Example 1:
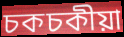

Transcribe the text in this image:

চকচকীয়া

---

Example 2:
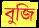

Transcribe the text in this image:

বুজি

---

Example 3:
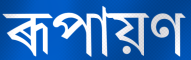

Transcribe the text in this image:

ৰূপায়ণ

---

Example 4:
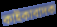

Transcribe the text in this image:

কাইকাবাদক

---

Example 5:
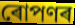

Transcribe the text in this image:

ৰোপণৰ